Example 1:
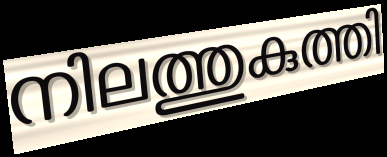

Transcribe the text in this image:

നിലത്തുകുത്തി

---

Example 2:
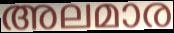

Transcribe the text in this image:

അലമാര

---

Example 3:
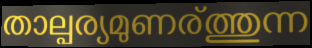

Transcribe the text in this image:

താല്പര്യമുണര്ത്തുന്ന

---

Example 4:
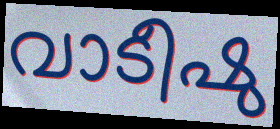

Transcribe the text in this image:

വാടീഷു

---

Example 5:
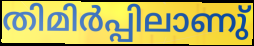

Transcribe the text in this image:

തിമിർപ്പിലാണു്